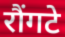
रौंगटे